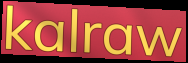
kalraw